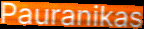
Pauranikas